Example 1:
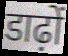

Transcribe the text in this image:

डाढ़ों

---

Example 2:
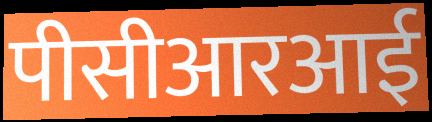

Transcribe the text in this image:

पीसीआरआई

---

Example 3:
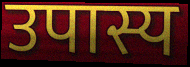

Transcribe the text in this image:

उपास्य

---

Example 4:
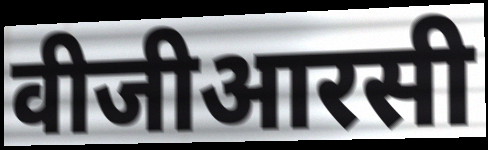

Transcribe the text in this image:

वीजीआरसी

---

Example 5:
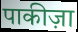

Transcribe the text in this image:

पाकीज़ा